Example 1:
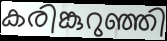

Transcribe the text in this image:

കരിങ്കുറുഞ്ഞി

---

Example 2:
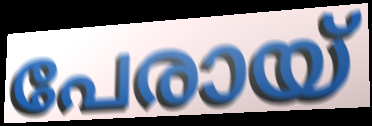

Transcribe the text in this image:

പേരായ്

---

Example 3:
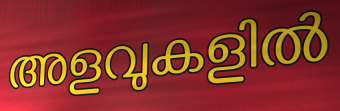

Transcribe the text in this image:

അളവുകളിൽ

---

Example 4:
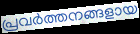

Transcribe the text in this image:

പ്രവർത്തനങ്ങളായ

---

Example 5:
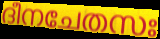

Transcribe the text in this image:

ദീനചേതസഃ